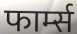
फार्म्स